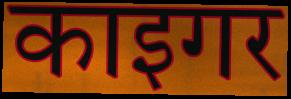
काइगर